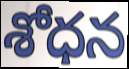
శోధన